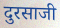
दुरसाजी